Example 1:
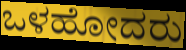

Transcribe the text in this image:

ಒಳಹೋದರು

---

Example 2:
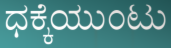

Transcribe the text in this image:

ಧಕ್ಕೆಯುಂಟು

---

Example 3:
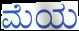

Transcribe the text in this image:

ಮೆಯ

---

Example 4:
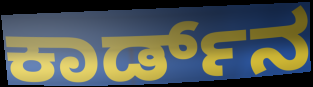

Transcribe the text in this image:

ಕಾರ್ಡ್‌ನ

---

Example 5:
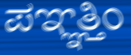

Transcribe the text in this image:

ಪಞ್ಞತ್ತಿಂ